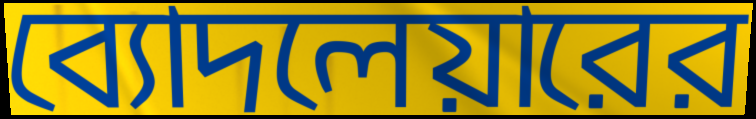
ব্যোদলেয়ারের